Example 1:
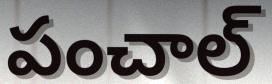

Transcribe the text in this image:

పంచాల్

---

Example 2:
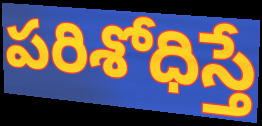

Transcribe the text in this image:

పరిశోధిస్తే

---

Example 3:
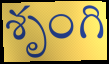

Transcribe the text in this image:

శృంగి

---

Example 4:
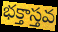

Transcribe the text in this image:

భక్తాస్తవ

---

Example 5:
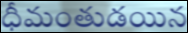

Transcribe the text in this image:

ధీమంతుడయిన